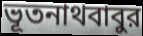
ভূতনাথবাবুর